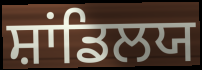
ਸ਼ਾਂਡਿਲਯ